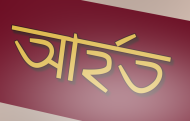
আর্হত